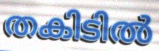
തകിടിൽ